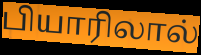
பியாரிலால்